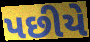
પછીયે